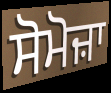
ਸੋਮੋਜ਼ਾ